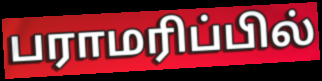
பராமரிப்பில்